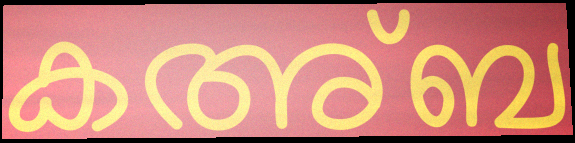
കഅ്ബ